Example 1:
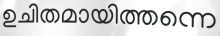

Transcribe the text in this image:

ഉചിതമായിത്തന്നെ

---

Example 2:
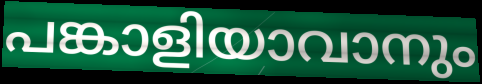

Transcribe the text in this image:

പങ്കാളിയാവാനും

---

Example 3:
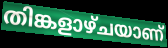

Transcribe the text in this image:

തിങ്കളാഴ്ചയാണ്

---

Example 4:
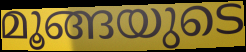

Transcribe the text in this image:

മൂങ്ങയുടെ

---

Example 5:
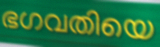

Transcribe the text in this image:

ഭഗവതിയെ